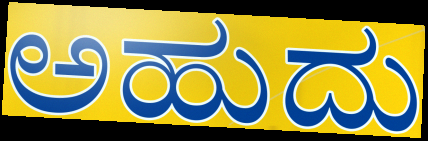
ಅಹುದು